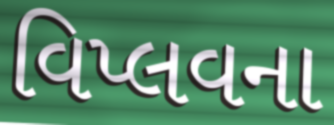
વિપ્લવના